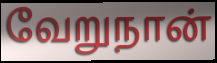
வேறுநான்